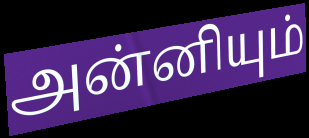
அன்னியும்